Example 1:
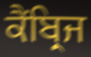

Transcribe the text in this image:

ਕੈਂਬ੍ਰਿਜ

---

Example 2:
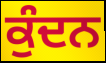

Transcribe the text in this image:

ਕੁੰਦਨ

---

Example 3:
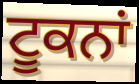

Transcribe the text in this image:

ਟੂਕਨਾਂ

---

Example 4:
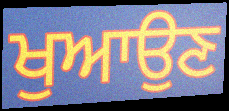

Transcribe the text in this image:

ਖੁਆਉਣ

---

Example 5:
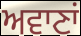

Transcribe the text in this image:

ਅਵਾਣਾਂ